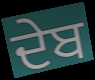
ਦੇਬ